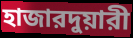
হাজারদুয়ারী